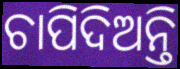
ଚାପିଦିଅନ୍ତି